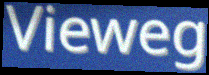
Vieweg